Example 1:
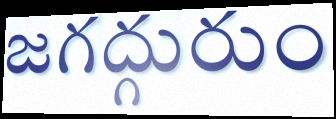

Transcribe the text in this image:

జగద్గురుం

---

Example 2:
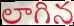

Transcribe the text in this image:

లాగిన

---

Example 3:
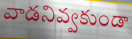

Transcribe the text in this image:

వాడనివ్వకుండా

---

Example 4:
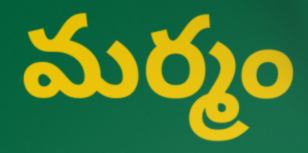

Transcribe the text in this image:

మర్మం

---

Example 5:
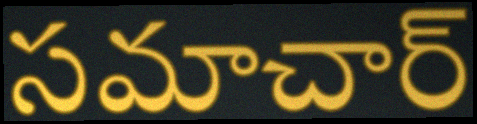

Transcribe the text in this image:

సమాచార్